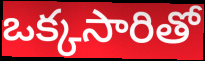
ఒక్కసారితో